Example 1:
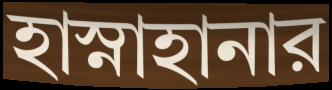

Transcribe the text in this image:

হাস্নাহানার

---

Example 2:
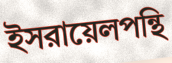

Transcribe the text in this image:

ইসরায়েলপন্থি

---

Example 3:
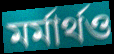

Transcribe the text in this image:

মর্মার্থও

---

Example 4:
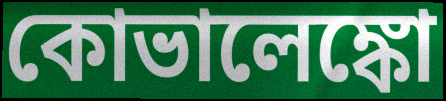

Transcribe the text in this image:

কোভালেঙ্কো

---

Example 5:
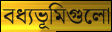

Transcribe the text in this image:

বধ্যভূমিগুলো